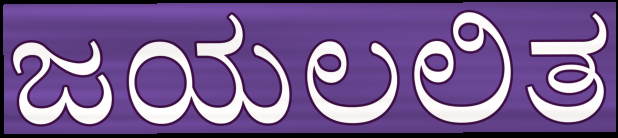
ಜಯಲಲಿತ